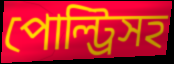
পোল্ট্রিসহ